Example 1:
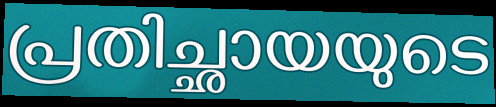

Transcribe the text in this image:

പ്രതിച്ഛായയുടെ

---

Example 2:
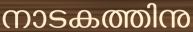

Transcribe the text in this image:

നാടകത്തിനു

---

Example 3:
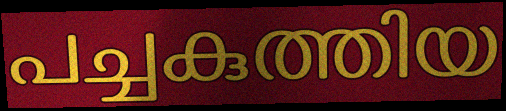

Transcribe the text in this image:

പച്ചകുത്തിയ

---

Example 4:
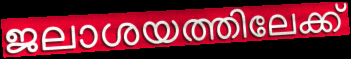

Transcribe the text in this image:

ജലാശയത്തിലേക്ക്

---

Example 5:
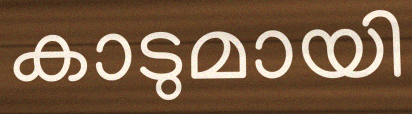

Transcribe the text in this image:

കാടുമായി